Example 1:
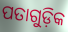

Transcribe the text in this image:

ପତାଗୁଡ଼ିକ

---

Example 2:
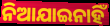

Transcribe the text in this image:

ନିଆଯାଇନାହିଁ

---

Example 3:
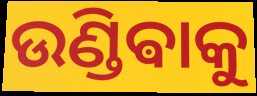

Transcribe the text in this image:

ଉଣ୍ଡିଵାକୁ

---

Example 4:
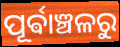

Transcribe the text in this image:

ପୂର୍ଵାଞ୍ଚଳରୁ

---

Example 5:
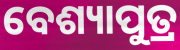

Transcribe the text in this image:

ବେଶ୍ୟାପୁତ୍ର